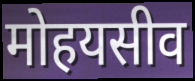
मोहयसीव